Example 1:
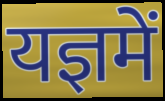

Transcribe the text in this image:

यज्ञमें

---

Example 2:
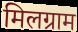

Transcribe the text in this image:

मिलग्राम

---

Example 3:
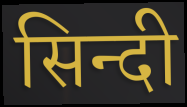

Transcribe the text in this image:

सिन्दी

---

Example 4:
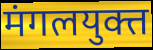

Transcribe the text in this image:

मंगलयुक्त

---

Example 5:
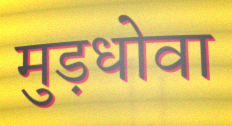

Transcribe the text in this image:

मुड़धोवा